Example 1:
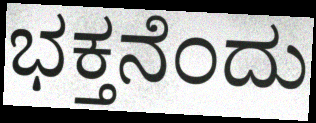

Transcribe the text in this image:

ಭಕ್ತನೆಂದು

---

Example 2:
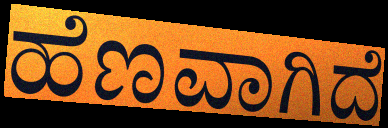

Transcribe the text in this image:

ಹೆಣವಾಗಿದೆ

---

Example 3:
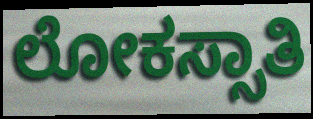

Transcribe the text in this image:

ಲೋಕಸ್ಸಾತಿ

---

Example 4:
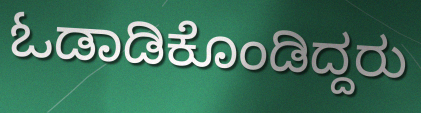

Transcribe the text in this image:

ಓಡಾಡಿಕೊಂಡಿದ್ದರು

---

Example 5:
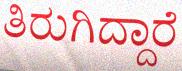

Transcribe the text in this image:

ತಿರುಗಿದ್ದಾರೆ